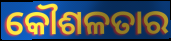
କୌଶଳତାର